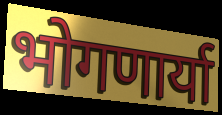
भोगणार्या